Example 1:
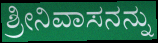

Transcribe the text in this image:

ಶ್ರೀನಿವಾಸನನ್ನು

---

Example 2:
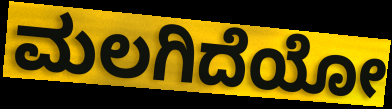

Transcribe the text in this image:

ಮಲಗಿದೆಯೋ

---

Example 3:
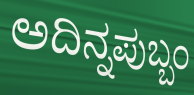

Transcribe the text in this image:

ಅದಿನ್ನಪುಬ್ಬಂ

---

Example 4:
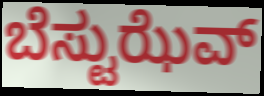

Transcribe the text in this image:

ಬೆಸ್ಟುಝೆವ್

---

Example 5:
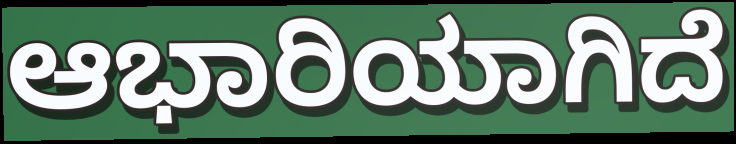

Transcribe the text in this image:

ಆಭಾರಿಯಾಗಿದೆ